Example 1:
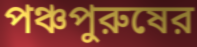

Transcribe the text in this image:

পঞ্চপুরুষের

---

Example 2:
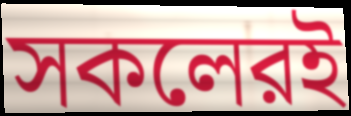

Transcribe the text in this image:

সকলেরই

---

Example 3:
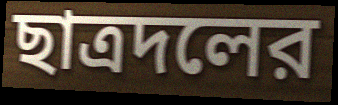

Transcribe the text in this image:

ছাত্রদলের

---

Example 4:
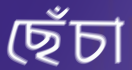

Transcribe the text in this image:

ছেঁচা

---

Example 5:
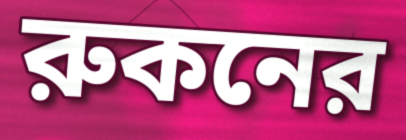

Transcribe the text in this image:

রুকনের